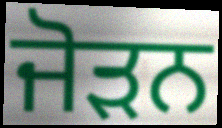
ਜੋੜਨ